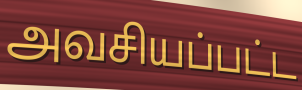
அவசியப்பட்ட